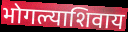
भोगल्याशिवाय